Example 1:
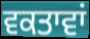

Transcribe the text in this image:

ਵਕਤਾਵਾਂ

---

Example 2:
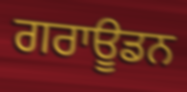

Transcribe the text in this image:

ਗਰਾਊਡਨ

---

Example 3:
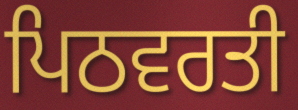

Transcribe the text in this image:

ਪਿਠਵਰਤੀ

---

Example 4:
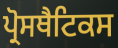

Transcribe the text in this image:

ਪ੍ਰੋਸਥੈਟਿਕਸ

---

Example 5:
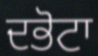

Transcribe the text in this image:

ਦਭੋਟਾ